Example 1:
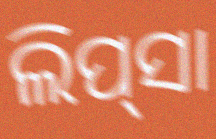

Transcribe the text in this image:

ଲିପ୍‌ସା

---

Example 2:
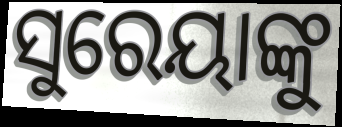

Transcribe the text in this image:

ସୁରେୟାଙ୍କୁ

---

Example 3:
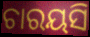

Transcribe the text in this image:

ଚାରୟସି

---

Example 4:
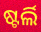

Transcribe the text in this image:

ଷ୍ଟର୍ଲି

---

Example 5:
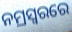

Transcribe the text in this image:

ନମ୍ରସ୍ୱରରେ